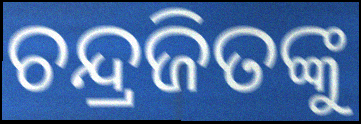
ଚନ୍ଦ୍ରଜିତଙ୍କୁ